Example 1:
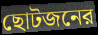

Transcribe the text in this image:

ছোটজনের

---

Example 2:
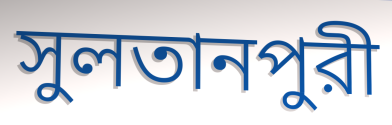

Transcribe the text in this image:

সুলতানপুরী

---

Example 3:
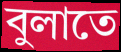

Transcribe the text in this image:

বুলাতে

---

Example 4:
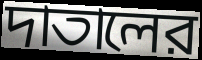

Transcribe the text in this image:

দাতালের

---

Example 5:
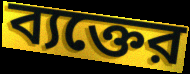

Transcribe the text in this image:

ব্যক্তের